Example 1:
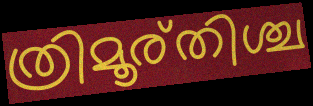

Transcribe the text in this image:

ത്രിമൂര്തിശ്ച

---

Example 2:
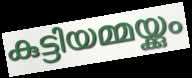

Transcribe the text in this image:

കുട്ടിയമ്മയ്ക്കും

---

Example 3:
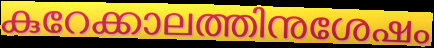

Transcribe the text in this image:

കുറേക്കാലത്തിനുശേഷം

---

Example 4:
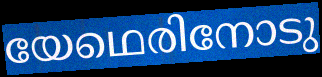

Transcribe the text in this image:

യേഥെരിനോടു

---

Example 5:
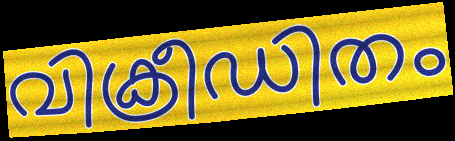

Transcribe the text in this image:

വിക്രീഡിതം